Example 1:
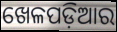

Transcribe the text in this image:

ଖେଳପଡ଼ିଆର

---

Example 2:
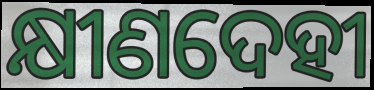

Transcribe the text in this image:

କ୍ଷୀଣଦେହୀ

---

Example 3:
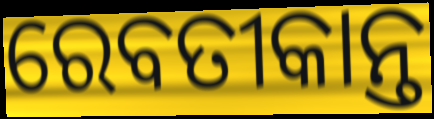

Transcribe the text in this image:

ରେବତୀକାନ୍ତ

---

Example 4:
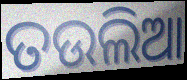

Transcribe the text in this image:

ତଉଲିଆ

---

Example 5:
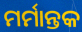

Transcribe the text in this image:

ମର୍ମାନ୍ତକ